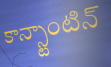
కాన్స్టాంటిన్